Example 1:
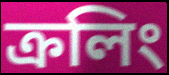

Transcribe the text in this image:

ক্রলিং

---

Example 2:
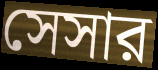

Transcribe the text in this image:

সেসার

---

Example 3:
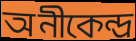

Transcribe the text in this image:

অনীকেন্দ্র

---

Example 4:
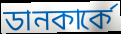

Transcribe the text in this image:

ডানকার্কে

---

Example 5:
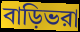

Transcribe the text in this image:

বাড়িভরা